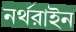
নর্থরাইন